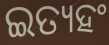
ଇତ୍ୟହଂ